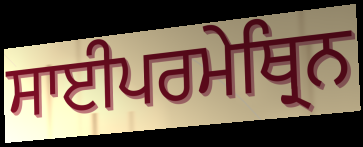
ਸਾਈਪਰਮੇਥ੍ਰਿਨ